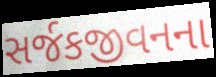
સર્જકજીવનના